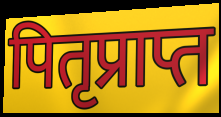
पितृप्राप्त